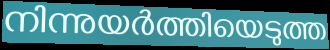
നിന്നുയർത്തിയെടുത്ത